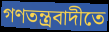
গণতন্ত্রবাদীতে